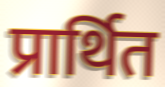
प्रार्थित